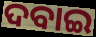
ଦବାଇ